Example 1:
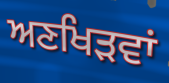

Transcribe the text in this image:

ਅਣਖਿੜਵਾਂ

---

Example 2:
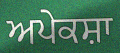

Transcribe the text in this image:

ਅਪੇਕਸ਼ਾ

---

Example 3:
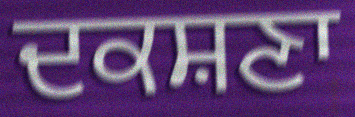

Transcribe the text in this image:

ਦਕਸ਼ਣਾ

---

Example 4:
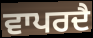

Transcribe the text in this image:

ਵਾਪਰਦੈ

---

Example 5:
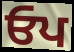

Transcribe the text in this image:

ਓਪ